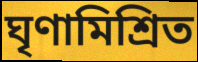
ঘৃণামিশ্রিত